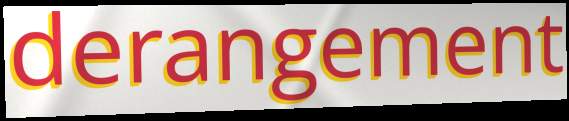
derangement